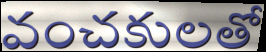
వంచకులతో